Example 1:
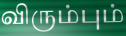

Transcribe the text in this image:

விரும்பும்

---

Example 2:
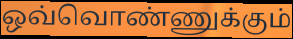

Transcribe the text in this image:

ஒவ்வொண்ணுக்கும்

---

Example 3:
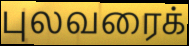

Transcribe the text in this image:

புலவரைக்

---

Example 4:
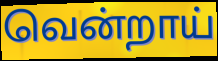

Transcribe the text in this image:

வென்றாய்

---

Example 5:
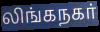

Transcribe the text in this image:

லிங்கநகர்